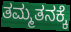
ತಮ್ಮತನಕ್ಕೆ